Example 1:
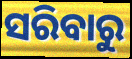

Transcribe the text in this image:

ସରିବାରୁ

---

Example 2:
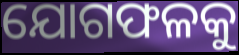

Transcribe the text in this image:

ଯୋଗଫଳକୁ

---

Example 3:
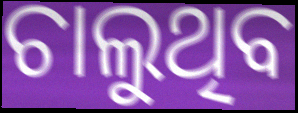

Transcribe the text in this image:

ଚାଲୁଥିବ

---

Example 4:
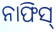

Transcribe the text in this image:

ନାଫିସ୍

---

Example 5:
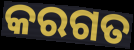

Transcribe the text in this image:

କରଗତ